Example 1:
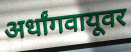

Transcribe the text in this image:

अर्धांगवायूवर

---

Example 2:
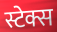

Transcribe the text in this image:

स्टेक्स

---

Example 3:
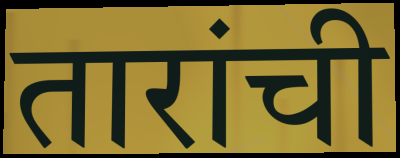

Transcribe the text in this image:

तारांची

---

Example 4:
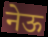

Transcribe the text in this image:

नेऊ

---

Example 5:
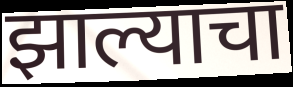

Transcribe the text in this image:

झाल्‍याचा